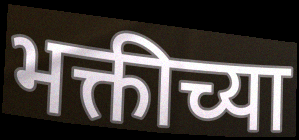
भक्तीच्या